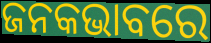
ଜନକଭାବରେ